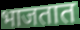
भाजतात